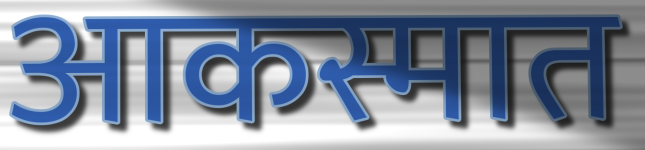
आकस्मात